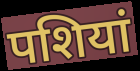
पशियां